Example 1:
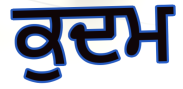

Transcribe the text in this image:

ਕੁਦਮ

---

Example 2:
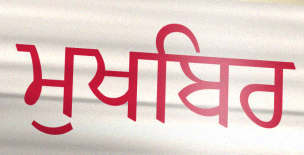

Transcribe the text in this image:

ਮੁਖਬਿਰ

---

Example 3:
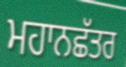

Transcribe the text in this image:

ਮਹਾਨਛੱਤਰ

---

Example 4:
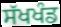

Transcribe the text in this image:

ਸੱਖਖੰਡ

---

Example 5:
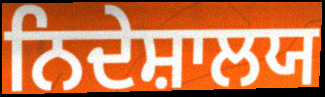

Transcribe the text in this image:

ਨਿਦੇਸ਼ਾਲਯ